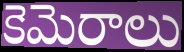
కెమెరాలు